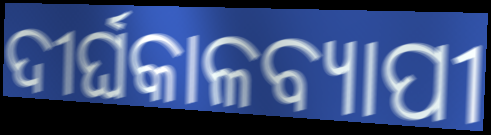
ଦୀର୍ଘକାଳବ୍ୟାପୀ